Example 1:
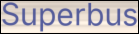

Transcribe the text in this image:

Superbus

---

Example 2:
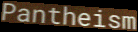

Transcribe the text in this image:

Pantheism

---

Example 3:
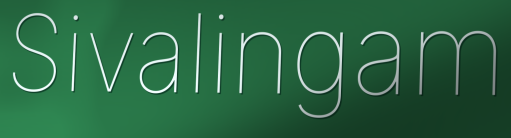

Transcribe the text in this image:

Sivalingam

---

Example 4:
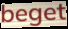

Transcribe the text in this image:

beget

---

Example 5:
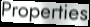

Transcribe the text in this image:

Properties